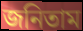
জনিতাম